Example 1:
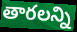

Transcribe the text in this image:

తారలన్ని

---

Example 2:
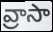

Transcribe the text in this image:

వ్రాసా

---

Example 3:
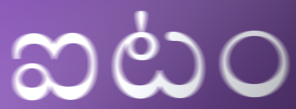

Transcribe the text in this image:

ఐటం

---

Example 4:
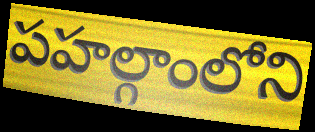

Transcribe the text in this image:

పహల్గాంలోని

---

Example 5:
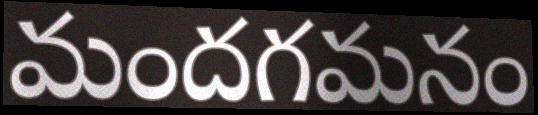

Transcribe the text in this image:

మందగమనం